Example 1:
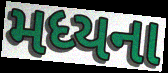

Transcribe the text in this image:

મધ્યના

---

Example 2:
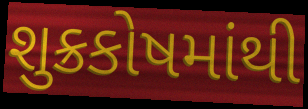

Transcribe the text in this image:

શુક્રકોષમાંથી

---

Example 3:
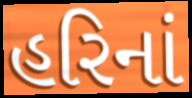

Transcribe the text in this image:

હરિનાં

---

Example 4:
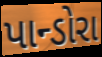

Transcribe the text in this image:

પાન્ડોરા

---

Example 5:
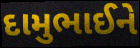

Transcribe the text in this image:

દામુભાઈને